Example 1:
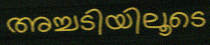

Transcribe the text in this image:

അച്ചടിയിലൂടെ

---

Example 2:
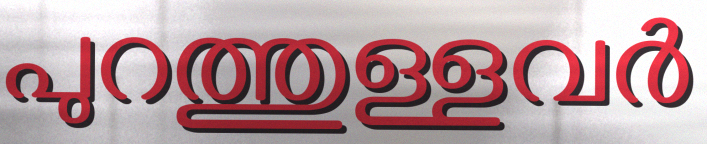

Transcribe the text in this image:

പുറത്തുള്ളവർ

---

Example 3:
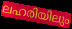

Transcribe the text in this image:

ലഹരിയിലും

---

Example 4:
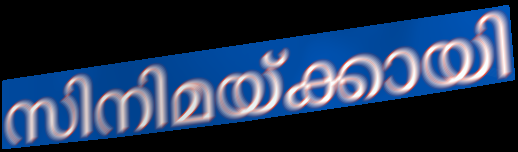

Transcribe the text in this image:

സിനിമയ്ക്കായി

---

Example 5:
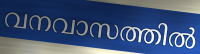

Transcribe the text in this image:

വനവാസത്തിൽ